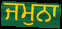
ਜਮੁਨਾ